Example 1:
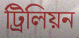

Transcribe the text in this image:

ট্ৰিলিয়ন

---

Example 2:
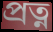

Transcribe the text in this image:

প্ৰত্ন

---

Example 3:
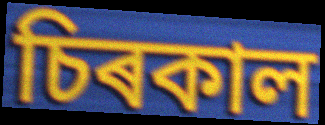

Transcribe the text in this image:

চিৰকাল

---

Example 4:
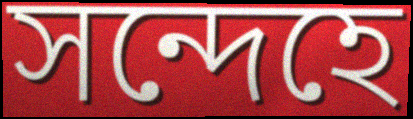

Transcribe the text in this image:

সন্দেহে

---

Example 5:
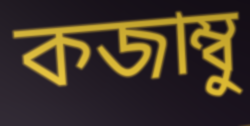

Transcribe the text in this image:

কজাম্বু